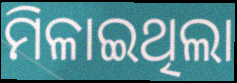
ମିଳାଇଥିଲା